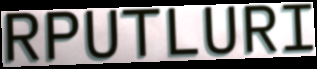
RPUTLURI